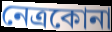
নেত্রকোনা